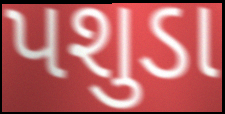
પશુડા